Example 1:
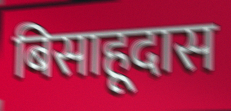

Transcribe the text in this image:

बिसाहूदास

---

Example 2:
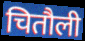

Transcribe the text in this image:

चितौली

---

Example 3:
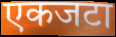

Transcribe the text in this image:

एकजटा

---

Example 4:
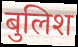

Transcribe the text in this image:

बुलिश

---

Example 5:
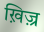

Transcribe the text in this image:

ख़िज़्र